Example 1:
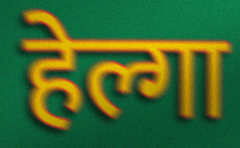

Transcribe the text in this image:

हेल्गा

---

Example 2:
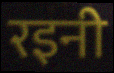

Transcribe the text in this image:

रइनी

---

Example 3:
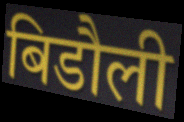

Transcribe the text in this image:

बिडौली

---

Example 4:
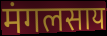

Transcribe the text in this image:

मंगलसाय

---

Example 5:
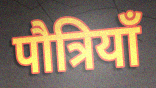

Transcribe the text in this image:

पौत्रियाँ